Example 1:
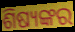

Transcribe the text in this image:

ଶିଷ୍ୟଙ୍କର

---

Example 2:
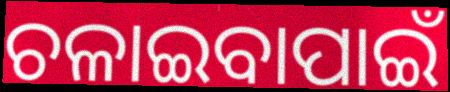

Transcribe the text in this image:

ଚଳାଇବାପାଇଁ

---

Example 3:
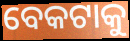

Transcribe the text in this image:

ବେକଟାକୁ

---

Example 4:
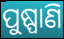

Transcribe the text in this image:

ପୁଷ୍ପାଣି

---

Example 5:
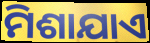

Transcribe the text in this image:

ମିଶାଯାଏ